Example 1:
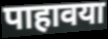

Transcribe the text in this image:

पाहावया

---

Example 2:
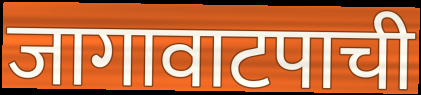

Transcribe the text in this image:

जागावाटपाची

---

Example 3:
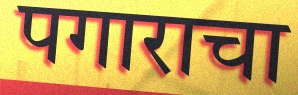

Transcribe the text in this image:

पगाराचा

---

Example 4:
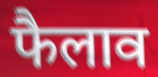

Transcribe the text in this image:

फैलाव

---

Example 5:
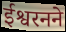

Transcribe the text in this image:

ईश्वरनने